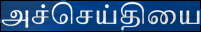
அச்செய்தியை